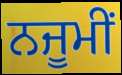
ਨਜੂਮੀਂ